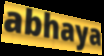
abhaya